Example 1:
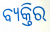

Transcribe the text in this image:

ବ୍ୟକ୍ତିର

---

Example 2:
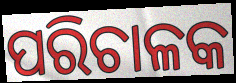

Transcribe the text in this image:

ପରିଚାଳକ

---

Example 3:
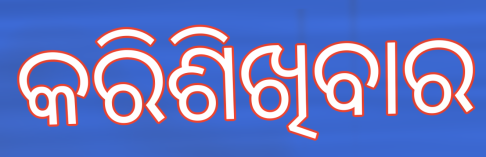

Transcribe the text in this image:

କରିଶିଖିବାର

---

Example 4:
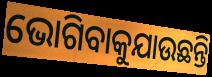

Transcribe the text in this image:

ଭୋଗିବାକୁଯାଉଛନ୍ତି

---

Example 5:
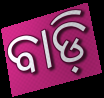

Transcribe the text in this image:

ବାଡ଼ି